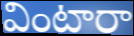
వింటారా